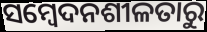
ସମ୍ବେଦନଶୀଳତାରୁ